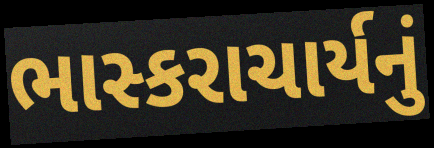
ભાસ્કરાચાર્યનું